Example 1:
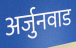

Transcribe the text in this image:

अर्जुनवाड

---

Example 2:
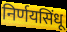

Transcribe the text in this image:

निर्णयसिंधू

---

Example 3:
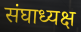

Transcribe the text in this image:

संघाध्यक्ष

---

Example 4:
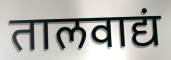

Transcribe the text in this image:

तालवाद्यं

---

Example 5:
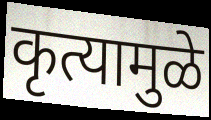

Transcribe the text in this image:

कृत्यामुळे